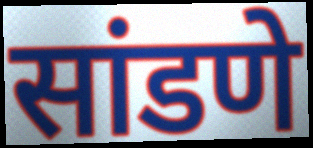
सांडणे